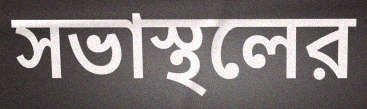
সভাস্থলের